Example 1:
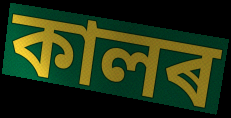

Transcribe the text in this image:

কালৰ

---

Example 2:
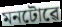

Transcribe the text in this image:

মনটোৱে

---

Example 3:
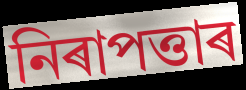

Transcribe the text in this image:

নিৰাপত্তাৰ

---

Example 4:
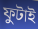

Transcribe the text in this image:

ফুটাই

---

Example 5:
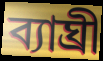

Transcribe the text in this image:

ব্যাঘ্ৰী